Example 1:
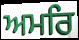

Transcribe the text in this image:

ਅਮਰਿ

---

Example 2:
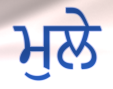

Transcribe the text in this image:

ਮੁਲੇ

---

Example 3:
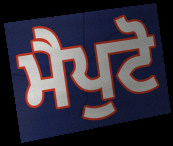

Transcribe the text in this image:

ਮੈਪੁਟੋ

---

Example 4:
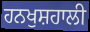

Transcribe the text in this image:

ਹਨਖੁਸ਼ਹਾਲੀ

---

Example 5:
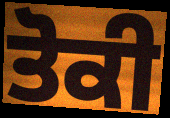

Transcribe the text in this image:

ਤੋਕੀ